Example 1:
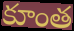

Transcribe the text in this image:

కూంత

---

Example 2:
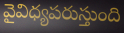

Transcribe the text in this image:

వైవిధ్యపరుస్తుంది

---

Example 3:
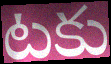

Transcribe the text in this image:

టకు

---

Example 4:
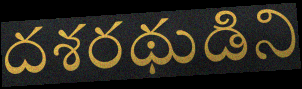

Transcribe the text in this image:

దశరథుడిని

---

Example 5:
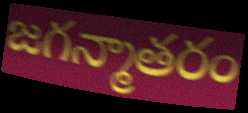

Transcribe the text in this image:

జగన్మాతరం